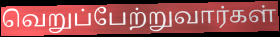
வெறுப்பேற்றுவார்கள்